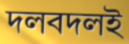
দলবদলই